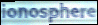
ionosphere